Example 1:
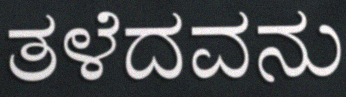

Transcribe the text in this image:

ತಳೆದವನು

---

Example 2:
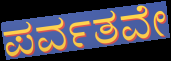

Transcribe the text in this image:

ಪರ್ವತವೇ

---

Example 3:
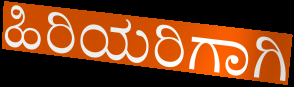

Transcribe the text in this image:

ಹಿರಿಯರಿಗಾಗಿ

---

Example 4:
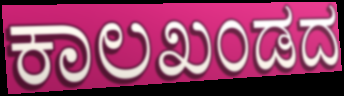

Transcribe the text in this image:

ಕಾಲಖಂಡದ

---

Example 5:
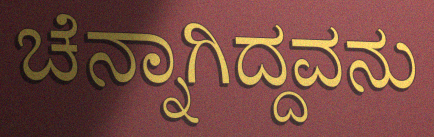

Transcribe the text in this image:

ಚೆನ್ನಾಗಿದ್ದವನು